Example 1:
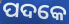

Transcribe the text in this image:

ପଦକେ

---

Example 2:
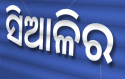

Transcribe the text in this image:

ସିଆଳିର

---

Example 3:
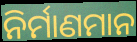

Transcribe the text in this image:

ନିର୍ମାଣମାନ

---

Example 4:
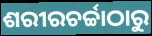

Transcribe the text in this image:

ଶରୀରଚର୍ଚ୍ଚାଠାରୁ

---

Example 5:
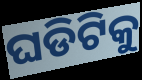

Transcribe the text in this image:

ଘଡିଟିକୁ